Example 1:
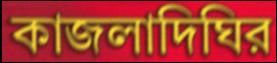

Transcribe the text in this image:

কাজলাদিঘির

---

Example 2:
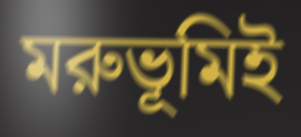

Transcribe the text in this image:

মরুভূমিই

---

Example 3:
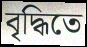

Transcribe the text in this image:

বৃদ্ধিতে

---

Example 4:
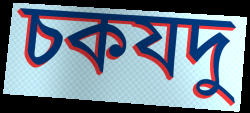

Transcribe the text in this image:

চকযদু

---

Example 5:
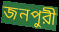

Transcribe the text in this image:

জনপুরী